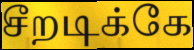
சீறடிக்கே